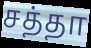
சத்தா